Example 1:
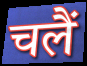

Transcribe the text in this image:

चलैं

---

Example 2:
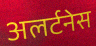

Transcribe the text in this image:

अलर्टनेस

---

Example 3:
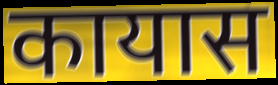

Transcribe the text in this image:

कायास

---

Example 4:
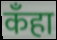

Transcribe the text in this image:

कँहा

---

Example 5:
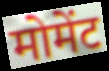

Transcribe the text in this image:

मोमेंट